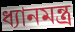
ধ্যানমন্ত্র